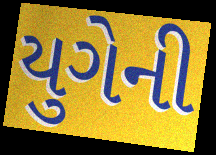
યુગેની